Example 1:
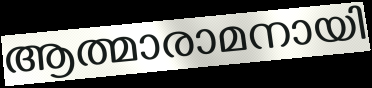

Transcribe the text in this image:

ആത്മാരാമനായി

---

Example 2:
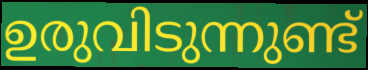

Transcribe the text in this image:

ഉരുവിടുന്നുണ്ട്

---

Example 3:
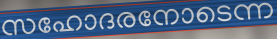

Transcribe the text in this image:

സഹോദരനോടെന്ന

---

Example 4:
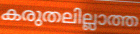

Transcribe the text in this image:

കരുതലില്ലാത്ത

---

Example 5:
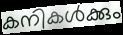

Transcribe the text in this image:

കനികൾക്കും